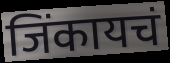
जिंकायचं